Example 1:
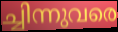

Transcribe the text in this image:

ച്ചിന്നുവരെ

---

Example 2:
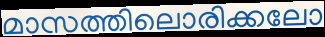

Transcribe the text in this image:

മാസത്തിലൊരിക്കലോ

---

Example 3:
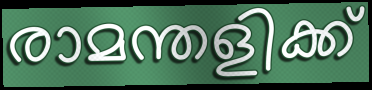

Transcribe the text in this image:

രാമന്തളിക്ക്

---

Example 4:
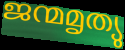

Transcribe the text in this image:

ജന്മമൃത്യു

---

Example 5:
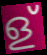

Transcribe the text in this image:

ള്